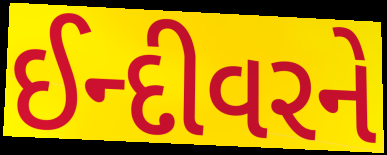
ઈન્દીવરને